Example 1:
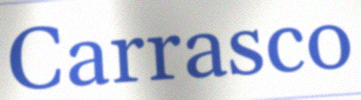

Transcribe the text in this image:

Carrasco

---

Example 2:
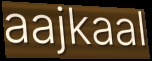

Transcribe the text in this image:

aajkaal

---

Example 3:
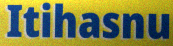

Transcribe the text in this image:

Itihasnu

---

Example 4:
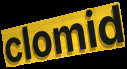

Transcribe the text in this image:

clomid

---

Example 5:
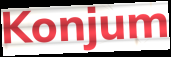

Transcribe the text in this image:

Konjum